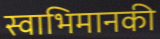
स्वाभिमानकी